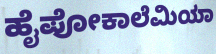
ಹೈಪೋಕಾಲೆಮಿಯಾ